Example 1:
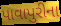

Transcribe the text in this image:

પાવાપુરીના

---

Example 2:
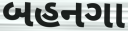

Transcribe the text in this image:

બહનગા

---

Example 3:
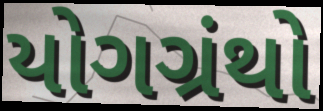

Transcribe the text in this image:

યોગગ્રંથો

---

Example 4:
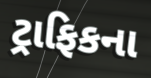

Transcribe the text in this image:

ટ્રાફિકના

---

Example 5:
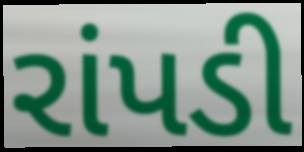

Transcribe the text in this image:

રાંપડી